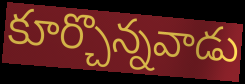
కూర్చొన్నవాడు